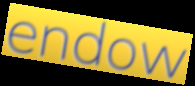
endow